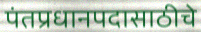
पंतप्रधानपदासाठीचे